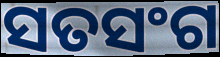
ସତସଂଗ